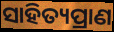
ସାହିତ୍ୟପ୍ରାଣ